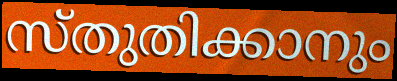
സ്തുതിക്കാനും